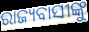
ରାଜ୍ୟବାସୀଙ୍କୁ